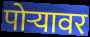
पोर्‍यावर